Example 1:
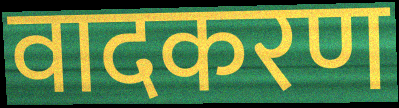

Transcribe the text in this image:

वादकरण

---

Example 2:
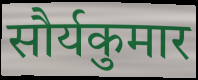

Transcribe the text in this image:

सौर्यकुमार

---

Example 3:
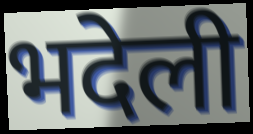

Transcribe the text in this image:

भदेली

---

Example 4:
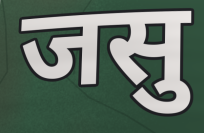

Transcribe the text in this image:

जसु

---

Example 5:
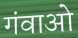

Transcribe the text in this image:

गंवाओ